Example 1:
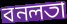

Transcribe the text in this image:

বনলতা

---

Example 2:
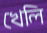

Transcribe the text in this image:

খেলি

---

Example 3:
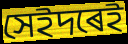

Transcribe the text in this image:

সেইদৰেই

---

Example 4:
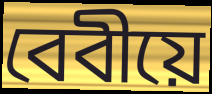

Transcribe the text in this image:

বেবীয়ে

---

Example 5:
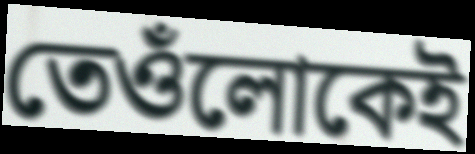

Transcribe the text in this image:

তেওঁলোকেই